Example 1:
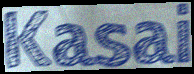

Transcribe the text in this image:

Kasai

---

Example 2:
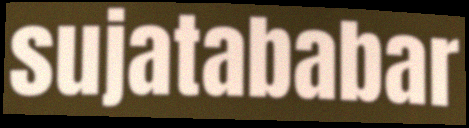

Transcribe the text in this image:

sujatababar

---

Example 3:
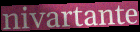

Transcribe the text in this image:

nivartante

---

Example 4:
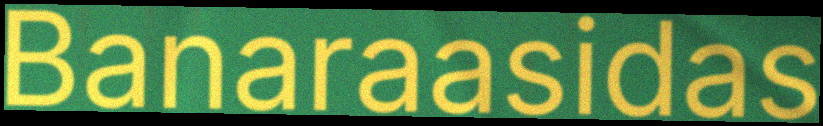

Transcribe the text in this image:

Banaraasidas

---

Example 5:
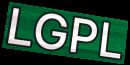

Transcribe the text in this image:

LGPL